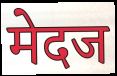
मेदज